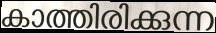
കാത്തിരിക്കുന്ന